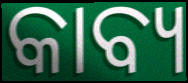
କାବ୍ୟ